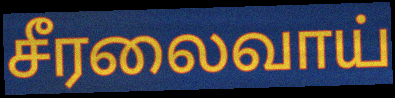
சீரலைவாய்